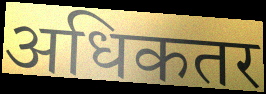
अधिकतर